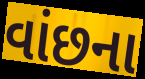
વાંછના